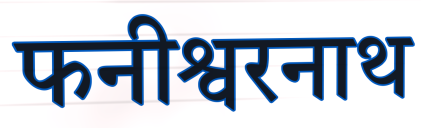
फनीश्वरनाथ